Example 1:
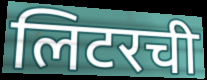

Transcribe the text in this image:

लिटरची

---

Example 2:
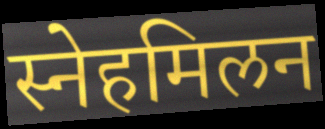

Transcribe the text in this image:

स्नेहमिलन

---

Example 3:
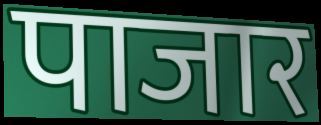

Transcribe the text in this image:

पाजार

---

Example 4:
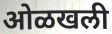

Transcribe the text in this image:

ओळखली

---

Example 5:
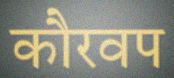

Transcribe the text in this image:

कौरवप